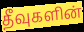
தீவுகளின்